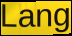
Lang